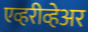
एव्हरीव्हेअर